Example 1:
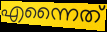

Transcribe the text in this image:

എന്നൈത്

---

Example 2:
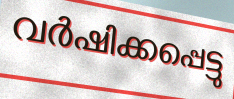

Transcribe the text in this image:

വർഷിക്കപ്പെട്ടു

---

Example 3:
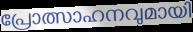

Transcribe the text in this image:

പ്രോത്സാഹനവുമായി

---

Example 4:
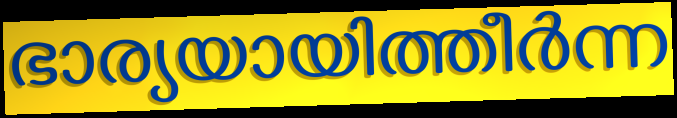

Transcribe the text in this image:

ഭാര്യയായിത്തീർന്ന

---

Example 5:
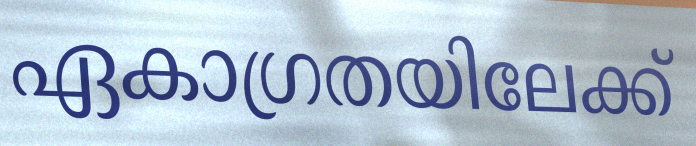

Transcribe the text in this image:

ഏകാഗ്രതയിലേക്ക്